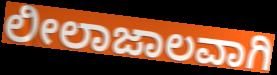
ಲೀಲಾಜಾಲವಾಗಿ